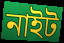
নাইট